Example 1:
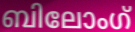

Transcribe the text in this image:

ബിലോംഗ്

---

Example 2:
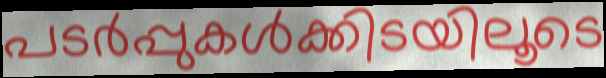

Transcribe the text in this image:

പടർപ്പുകൾക്കിടയിലൂടെ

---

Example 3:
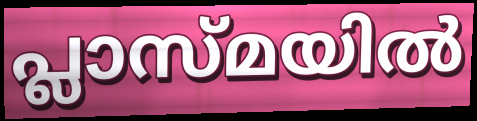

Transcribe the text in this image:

പ്ലാസ്മയിൽ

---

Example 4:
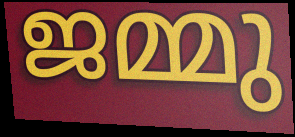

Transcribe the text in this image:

ജമ്മു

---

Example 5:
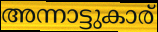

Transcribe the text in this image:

അന്നാട്ടുകാര്